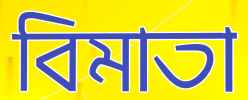
বিমাতা